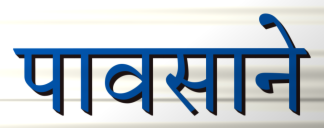
पावसाने